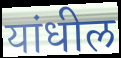
यांधील